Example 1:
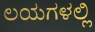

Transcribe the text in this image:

ಲಯಗಳಲ್ಲಿ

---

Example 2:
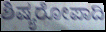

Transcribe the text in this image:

ಶಿಷ್ಯರೋಪಾದಿ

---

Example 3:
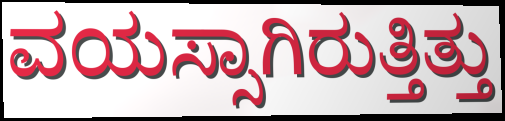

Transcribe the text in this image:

ವಯಸ್ಸಾಗಿರುತ್ತಿತ್ತು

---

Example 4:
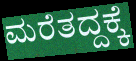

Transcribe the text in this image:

ಮರೆತದ್ದಕ್ಕೆ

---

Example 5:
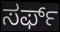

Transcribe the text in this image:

ಸರ್ಫ್